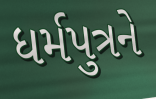
ધર્મપુત્રને